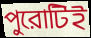
পুরোটিই